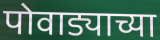
पोवाड्याच्या